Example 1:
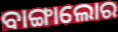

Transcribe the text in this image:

ବାଙ୍ଗାଲୋର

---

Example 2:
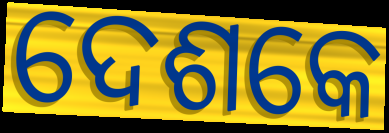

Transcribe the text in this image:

ଦେଶକେ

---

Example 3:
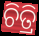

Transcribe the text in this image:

ଚିତ୍ରି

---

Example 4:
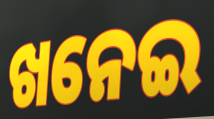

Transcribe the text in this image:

ଖନେଇ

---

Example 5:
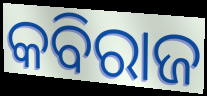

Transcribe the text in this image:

କବିରାଜ